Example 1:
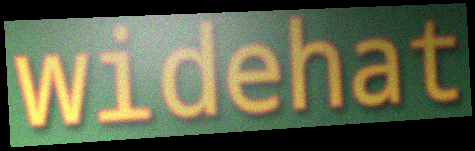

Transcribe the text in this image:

widehat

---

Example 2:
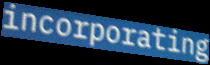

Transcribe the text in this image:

incorporating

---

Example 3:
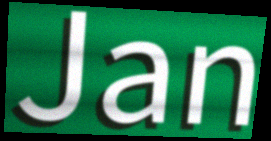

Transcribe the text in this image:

Jan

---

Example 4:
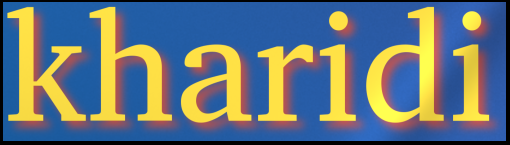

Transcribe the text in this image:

kharidi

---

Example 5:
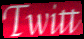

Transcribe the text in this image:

Twitt